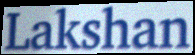
Lakshan